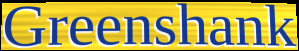
Greenshank